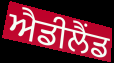
ਐਡੀਲੈਂਡ